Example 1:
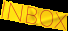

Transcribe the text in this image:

INBOX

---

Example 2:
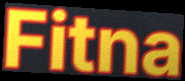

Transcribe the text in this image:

Fitna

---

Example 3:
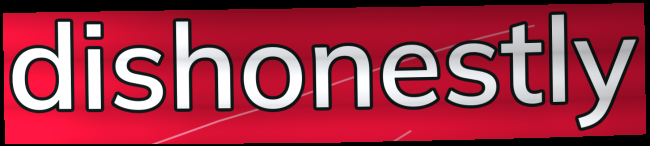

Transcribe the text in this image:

dishonestly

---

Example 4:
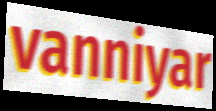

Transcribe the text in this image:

vanniyar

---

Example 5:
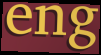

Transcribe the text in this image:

eng